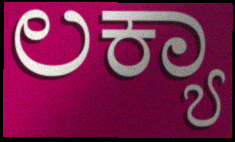
ಲಕ್ಯಾ